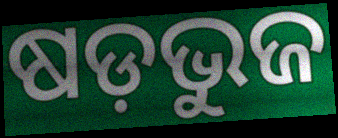
ଷଡ଼ଭୁଜ